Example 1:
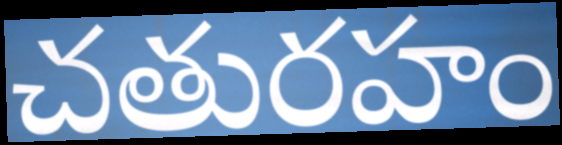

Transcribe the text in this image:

చతురహం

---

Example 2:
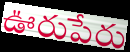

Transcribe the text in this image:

ఊరుపేరు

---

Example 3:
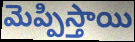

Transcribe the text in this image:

మెప్పిస్తాయి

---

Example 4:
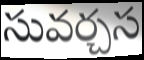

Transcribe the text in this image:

సువర్చస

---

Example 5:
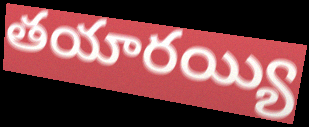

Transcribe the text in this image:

తయారయ్యి